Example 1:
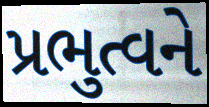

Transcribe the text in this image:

પ્રભુત્વને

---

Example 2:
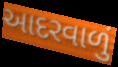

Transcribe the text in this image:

આદરવાળું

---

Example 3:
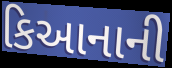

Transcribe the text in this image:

કિઆનાની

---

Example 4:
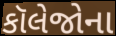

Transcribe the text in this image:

કૉલેજોના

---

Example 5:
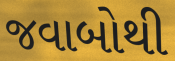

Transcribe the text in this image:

જવાબોથી